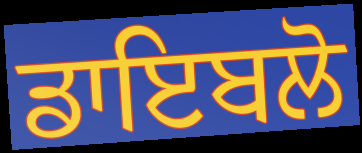
ਡਾਇਬਲੋ